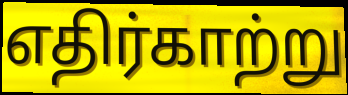
எதிர்காற்று